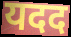
यदद